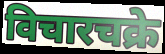
विचारचक्रे